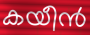
കയീൻ